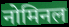
नोमिनल